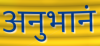
अनुभानं